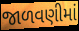
જાળવણીમાં